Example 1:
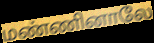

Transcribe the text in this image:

மண்ணினாலே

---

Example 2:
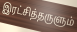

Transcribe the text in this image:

இரட்சித்தருளும்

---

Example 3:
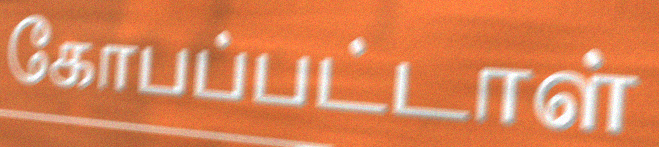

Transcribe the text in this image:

கோபப்பட்டாள்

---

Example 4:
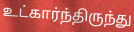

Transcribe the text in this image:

உட்கார்ந்திருந்து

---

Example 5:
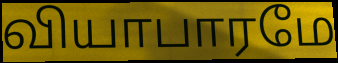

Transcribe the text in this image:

வியாபாரமே